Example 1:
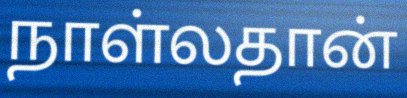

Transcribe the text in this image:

நாள்லதான்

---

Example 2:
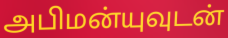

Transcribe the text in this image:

அபிமன்யுவுடன்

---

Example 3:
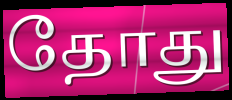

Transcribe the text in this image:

தோது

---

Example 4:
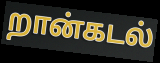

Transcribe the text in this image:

றான்கடல்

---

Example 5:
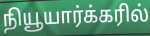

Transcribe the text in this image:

நியூயார்க்கரில்